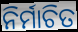
ନିର୍ମାଚିତ